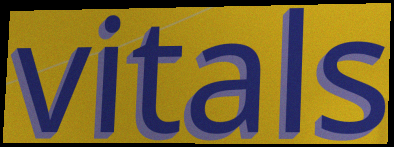
vitals